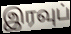
இரவுப்